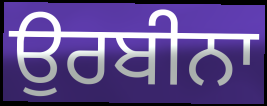
ਉਰਬੀਨਾ